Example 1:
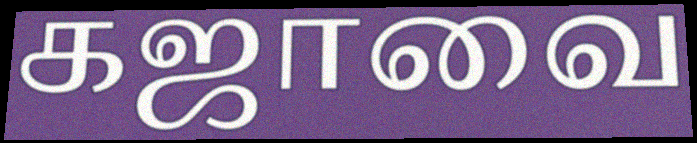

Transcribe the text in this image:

கஜாவை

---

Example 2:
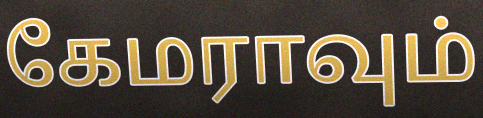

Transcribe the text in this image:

கேமராவும்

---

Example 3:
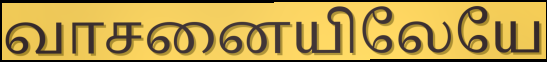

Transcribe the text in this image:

வாசனையிலேயே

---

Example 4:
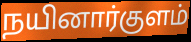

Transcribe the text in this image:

நயினார்குளம்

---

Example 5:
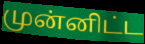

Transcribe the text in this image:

முன்னிட்ட